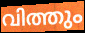
വിത്തും